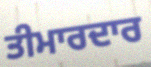
ਤੀਮਾਰਦਾਰ